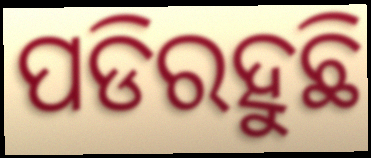
ପଡିରହୁଛି